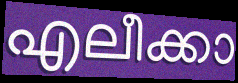
എലീക്കാ